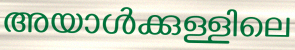
അയാൾക്കുള്ളിലെ